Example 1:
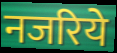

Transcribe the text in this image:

नजरिये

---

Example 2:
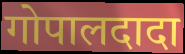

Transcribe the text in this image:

गोपालदादा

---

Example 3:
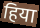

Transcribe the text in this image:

हिया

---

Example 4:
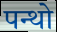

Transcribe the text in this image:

पन्थो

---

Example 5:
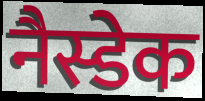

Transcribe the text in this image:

नैस्डेक